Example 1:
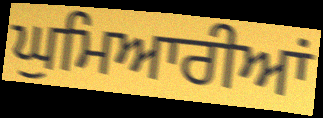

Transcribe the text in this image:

ਘੁਮਿਆਰੀਆਂ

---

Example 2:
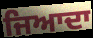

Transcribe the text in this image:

ਜਿਆਦਾ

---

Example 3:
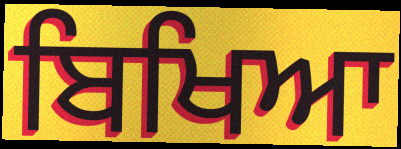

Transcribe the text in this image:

ਬਿਖਿਆ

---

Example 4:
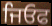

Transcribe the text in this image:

ਜਿਓਫ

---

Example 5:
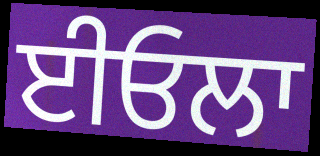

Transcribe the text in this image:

ਈਓਲਾ